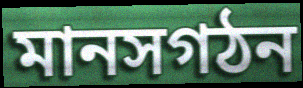
মানসগঠন